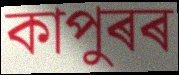
কাপুৰৰ